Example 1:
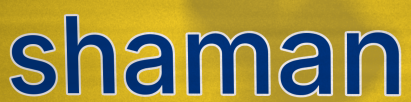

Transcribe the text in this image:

shaman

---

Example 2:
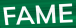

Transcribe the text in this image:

FAME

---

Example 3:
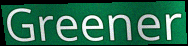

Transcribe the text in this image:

Greener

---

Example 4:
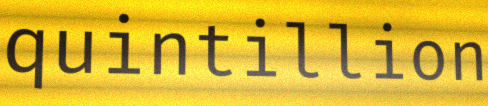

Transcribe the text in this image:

quintillion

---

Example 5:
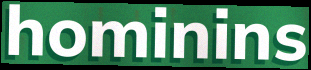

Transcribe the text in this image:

hominins